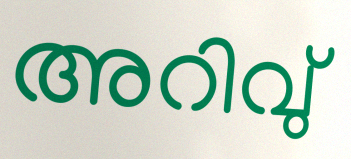
അറിവു്